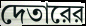
দেতারের